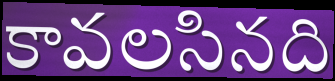
కావలసినది